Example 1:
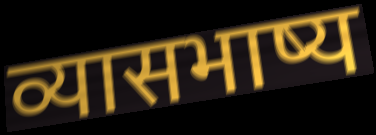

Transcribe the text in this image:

व्यासभाष्य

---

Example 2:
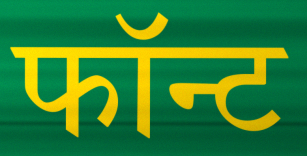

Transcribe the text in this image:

फॉन्ट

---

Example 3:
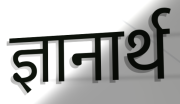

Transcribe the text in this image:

ज्ञानार्थ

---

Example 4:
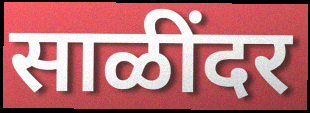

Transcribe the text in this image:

साळींदर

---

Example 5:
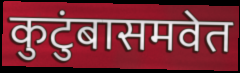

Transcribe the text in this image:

कुटुंबासमवेत